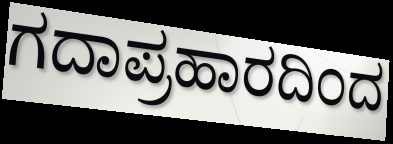
ಗದಾಪ್ರಹಾರದಿಂದ